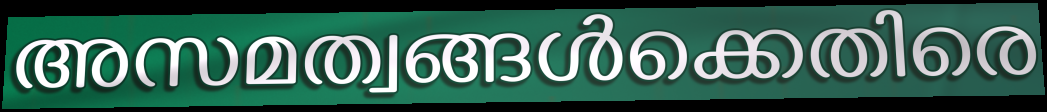
അസമത്വങ്ങൾക്കെതിരെ